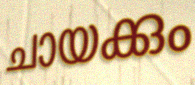
ചായക്കും